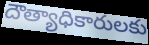
దౌత్యాధికారులకు